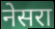
नेसरा